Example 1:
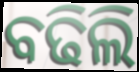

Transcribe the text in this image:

ବଢିଲି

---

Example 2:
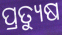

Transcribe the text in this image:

ପ୍ରତ୍ୟୁଷ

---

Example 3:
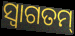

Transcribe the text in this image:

ସ୍ୱାଗତମ୍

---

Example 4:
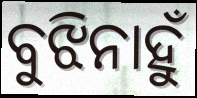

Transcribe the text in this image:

ବୁଝିନାହୁଁ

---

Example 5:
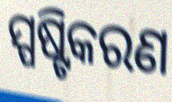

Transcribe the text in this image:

ସ୍ପଷ୍ଟିକରଣ